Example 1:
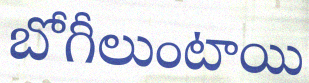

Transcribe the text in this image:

బోగీలుంటాయి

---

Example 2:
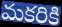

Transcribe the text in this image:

మకరికి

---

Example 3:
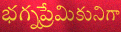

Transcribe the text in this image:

భగ్నప్రేమికునిగా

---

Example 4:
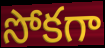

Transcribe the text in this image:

సోకగా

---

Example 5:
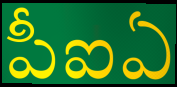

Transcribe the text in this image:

పీఐఏ